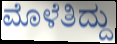
ಮೊಳೆತಿದ್ದು